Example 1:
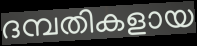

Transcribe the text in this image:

ദമ്പതികളായ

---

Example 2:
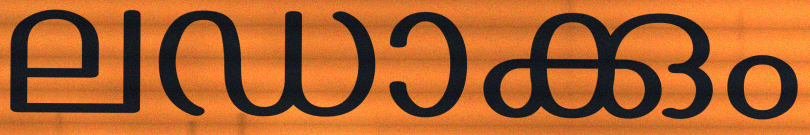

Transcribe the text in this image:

ലഡാക്കും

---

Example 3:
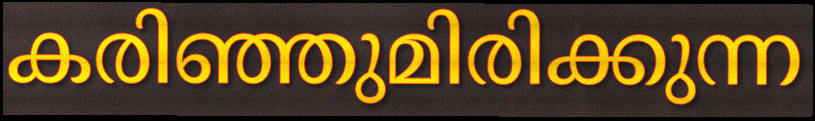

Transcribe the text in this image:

കരിഞ്ഞുമിരിക്കുന്ന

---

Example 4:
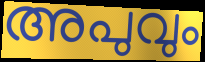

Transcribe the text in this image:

അപുവും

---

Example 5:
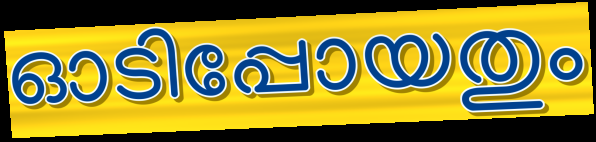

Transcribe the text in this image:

ഓടിപ്പോയതും